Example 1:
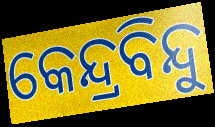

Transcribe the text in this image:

କେନ୍ଦ୍ରବିନ୍ଦୁ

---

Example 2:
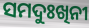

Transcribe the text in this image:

ସମଦୁଃଖିନୀ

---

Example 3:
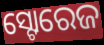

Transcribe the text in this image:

ସ୍ଟୋରେଜ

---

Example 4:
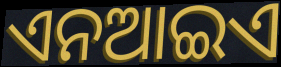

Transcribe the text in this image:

ଏନଆଇଏ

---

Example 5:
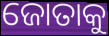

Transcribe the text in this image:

ଜୋତାକୁ